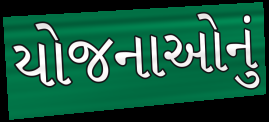
યોજનાઓનું